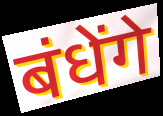
बंधेंगे